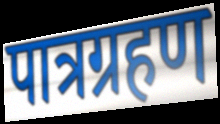
पात्रग्रहण